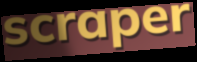
scraper